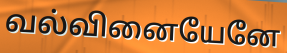
வல்வினையேனே